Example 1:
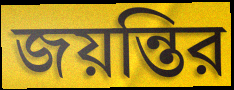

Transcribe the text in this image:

জয়ন্তির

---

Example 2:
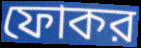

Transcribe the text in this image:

ফোকর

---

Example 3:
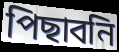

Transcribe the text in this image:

পিছাবনি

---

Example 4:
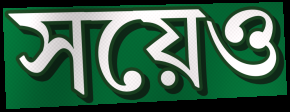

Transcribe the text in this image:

সয়েও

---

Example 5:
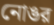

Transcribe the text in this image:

নোঙর